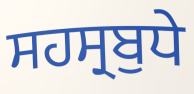
ਸਹਸ੍ਰਬੁਧੇ